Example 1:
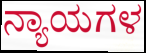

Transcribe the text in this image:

ನ್ಯಾಯಗಳ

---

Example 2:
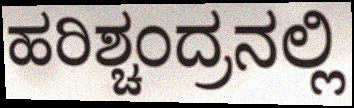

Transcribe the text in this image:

ಹರಿಶ್ಚಂದ್ರನಲ್ಲಿ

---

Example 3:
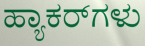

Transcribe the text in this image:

ಹ್ಯಾಕರ್‌ಗಳು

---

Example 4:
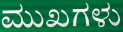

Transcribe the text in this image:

ಮುಖಗಳು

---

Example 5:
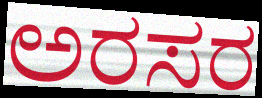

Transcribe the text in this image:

ಅರಸರ